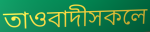
তাওবাদীসকলে